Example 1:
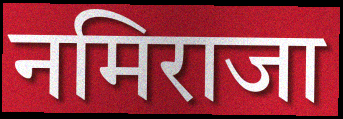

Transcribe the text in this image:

नमिराजा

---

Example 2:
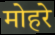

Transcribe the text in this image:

मोहरे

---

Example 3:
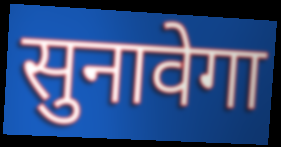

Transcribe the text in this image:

सुनावेगा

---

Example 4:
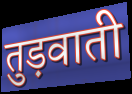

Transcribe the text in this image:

तुड़वाती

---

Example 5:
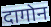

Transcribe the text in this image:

दागोन